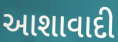
આશાવાદી